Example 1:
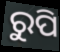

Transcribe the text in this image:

ରୁପି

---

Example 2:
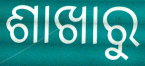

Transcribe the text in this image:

ଶାଖାରୁ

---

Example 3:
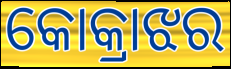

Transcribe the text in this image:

କୋକ୍ରାଝର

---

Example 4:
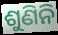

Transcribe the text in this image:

ଶୁଣିନି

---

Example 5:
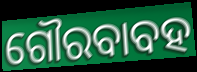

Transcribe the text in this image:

ଗୌରବାବହ